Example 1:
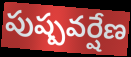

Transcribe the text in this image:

పుష్పవర్షేణ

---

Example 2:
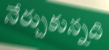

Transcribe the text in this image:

నేర్చుకున్నది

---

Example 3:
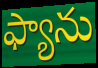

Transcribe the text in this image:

ఫ్యాను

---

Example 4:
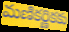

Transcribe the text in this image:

మణికర్ణికకు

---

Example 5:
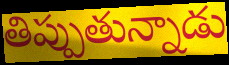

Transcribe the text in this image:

తిప్పుతున్నాడు